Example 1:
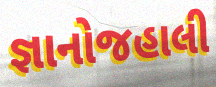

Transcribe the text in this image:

જ્ઞાનોજહાલી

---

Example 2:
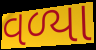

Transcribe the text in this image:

વળ્યા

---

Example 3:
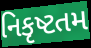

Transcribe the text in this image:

નિકૃષ્ટતમ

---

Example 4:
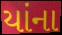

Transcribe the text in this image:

યાંના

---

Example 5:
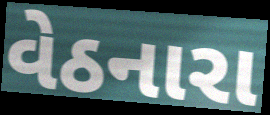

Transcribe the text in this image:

વેઠનારા